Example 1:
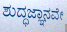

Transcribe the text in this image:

ಶುದ್ಧಜ್ಞಾನವೇ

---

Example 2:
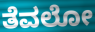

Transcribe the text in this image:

ತೆವಲೋ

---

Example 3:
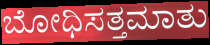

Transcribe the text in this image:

ಬೋಧಿಸತ್ತಮಾತು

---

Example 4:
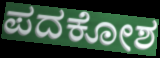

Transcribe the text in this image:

ಪದಕೋಶ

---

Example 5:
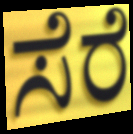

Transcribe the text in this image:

ಸೆರೆ